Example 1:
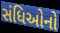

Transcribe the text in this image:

સંધિઓનો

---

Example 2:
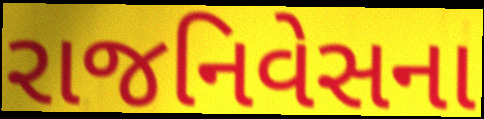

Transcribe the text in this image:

રાજનિવેસના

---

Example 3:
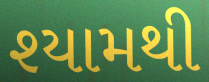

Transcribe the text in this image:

શ્યામથી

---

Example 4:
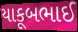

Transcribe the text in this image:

યાકૂબભાઈ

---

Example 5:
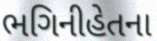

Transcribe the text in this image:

ભગિનીહેતના